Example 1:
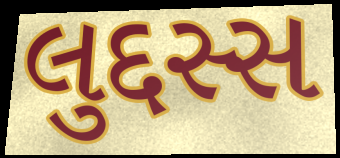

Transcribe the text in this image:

લુદ્દસ્સ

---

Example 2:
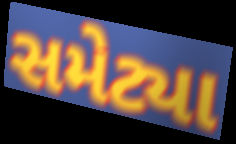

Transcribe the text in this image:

સમેટ્યા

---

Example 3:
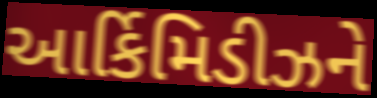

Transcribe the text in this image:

આર્કિમિડીઝને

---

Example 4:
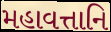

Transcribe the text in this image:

મહાવત્તાનિ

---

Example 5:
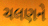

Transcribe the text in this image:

ચલણને